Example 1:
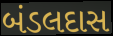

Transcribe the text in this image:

બંડલદાસ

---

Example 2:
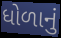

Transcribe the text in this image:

ધોળાનું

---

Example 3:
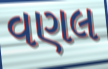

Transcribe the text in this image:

વણલ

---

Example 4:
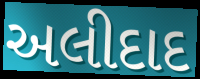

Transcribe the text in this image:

અલીદાદ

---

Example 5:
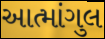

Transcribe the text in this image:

આત્માંગુલ